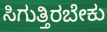
ಸಿಗುತ್ತಿರಬೇಕು